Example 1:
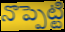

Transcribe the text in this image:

నొప్పెట్టి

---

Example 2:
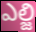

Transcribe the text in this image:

ఎల్జి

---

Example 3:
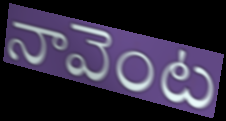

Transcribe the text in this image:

నావెంట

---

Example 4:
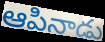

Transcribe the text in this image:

ఆపినాడు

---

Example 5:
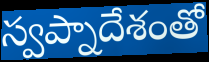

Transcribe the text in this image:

స్వప్నాదేశంతో